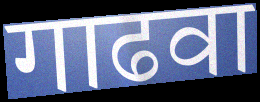
गाढवा